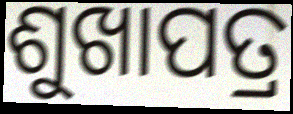
ଶୁଖାପତ୍ର